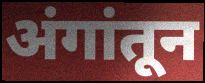
अंगांतून